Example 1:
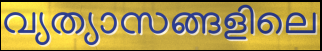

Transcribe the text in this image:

വ്യത്യാസങ്ങളിലെ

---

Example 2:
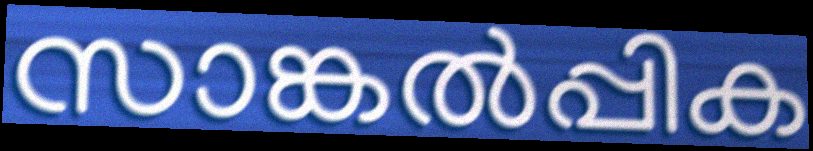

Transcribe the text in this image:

സാങ്കൽപ്പിക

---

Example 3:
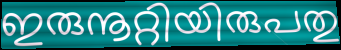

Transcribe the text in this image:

ഇരുനൂറ്റിയിരുപതു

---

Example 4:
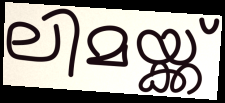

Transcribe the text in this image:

ലിമയ്ക്ക്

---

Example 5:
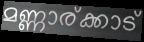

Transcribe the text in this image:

മണ്ണാര്ക്കാട്